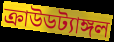
ক্রাউডট্যাঙ্গল